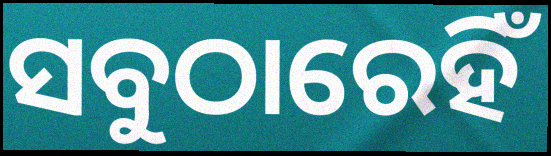
ସବୁଠାରେହିଁ